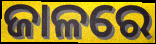
ଜାଳରେ